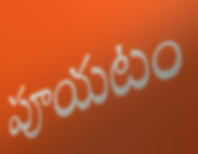
పూయటం